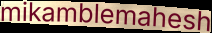
mikamblemahesh